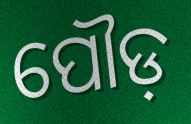
ପୌଡ଼